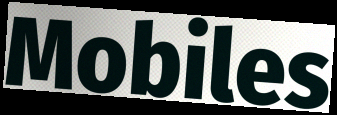
Mobiles